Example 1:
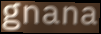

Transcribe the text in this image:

gnana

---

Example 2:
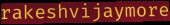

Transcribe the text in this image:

rakeshvijaymore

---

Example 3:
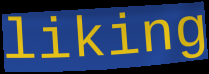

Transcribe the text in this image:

liking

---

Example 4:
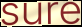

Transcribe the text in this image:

sure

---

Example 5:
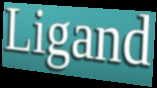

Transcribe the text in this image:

Ligand